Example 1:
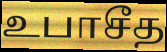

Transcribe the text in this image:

உபாசீத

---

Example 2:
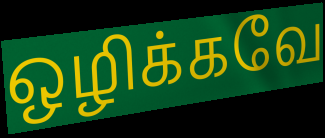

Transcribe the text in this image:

ஒழிக்கவே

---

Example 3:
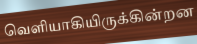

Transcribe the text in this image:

வெளியாகியிருக்கின்றன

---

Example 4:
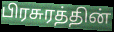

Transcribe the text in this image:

பிரசுரத்தின்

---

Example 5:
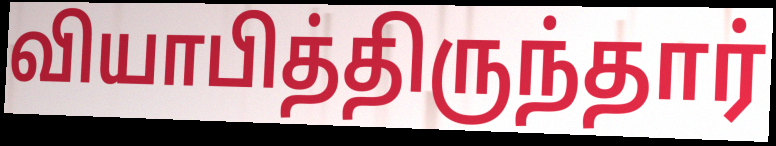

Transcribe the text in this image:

வியாபித்திருந்தார்